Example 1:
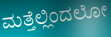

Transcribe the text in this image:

ಮತ್ತೆಲ್ಲಿಂದಲೋ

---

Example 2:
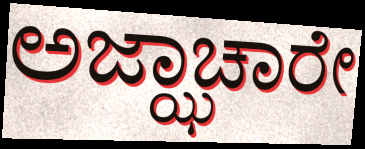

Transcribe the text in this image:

ಅಜ್ಝಾಚಾರೇ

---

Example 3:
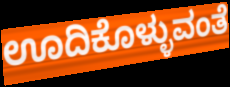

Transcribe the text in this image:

ಊದಿಕೊಳ್ಳುವಂತೆ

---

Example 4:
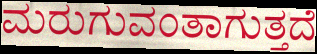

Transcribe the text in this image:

ಮರುಗುವಂತಾಗುತ್ತದೆ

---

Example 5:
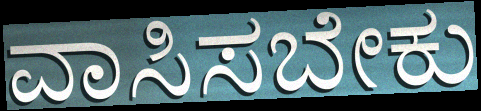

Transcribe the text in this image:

ವಾಸಿಸಬೇಕು